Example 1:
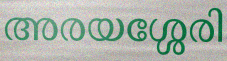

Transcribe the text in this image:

അരയശ്ശേരി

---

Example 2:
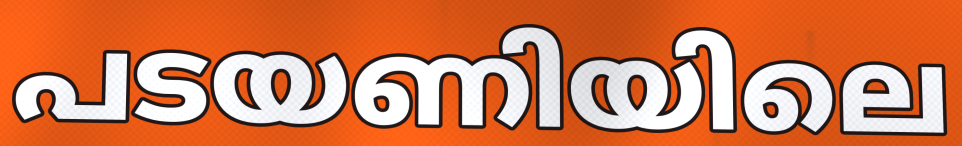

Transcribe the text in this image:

പടയണിയിലെ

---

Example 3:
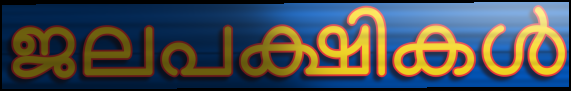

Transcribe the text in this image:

ജലപക്ഷികൾ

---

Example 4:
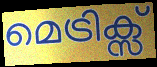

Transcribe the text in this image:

മെട്രിക്സ്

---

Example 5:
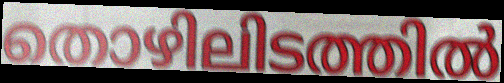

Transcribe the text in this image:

തൊഴിലിടത്തിൽ